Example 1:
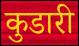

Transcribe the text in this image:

कुडारी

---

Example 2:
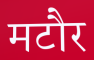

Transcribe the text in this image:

मटौर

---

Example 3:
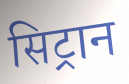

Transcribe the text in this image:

सिट्रान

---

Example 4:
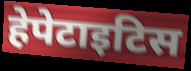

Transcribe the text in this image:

हेपेटाइटिस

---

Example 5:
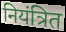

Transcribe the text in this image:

नियंत्रित